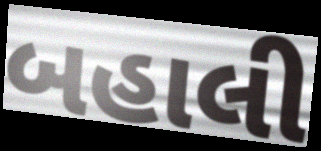
બહાલી